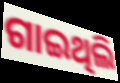
ଗାଇଥିଲି